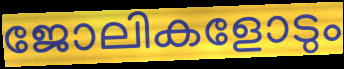
ജോലികളോടും